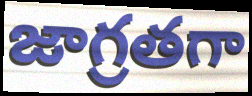
జాగ్రతగా